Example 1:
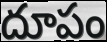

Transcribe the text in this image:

దూపం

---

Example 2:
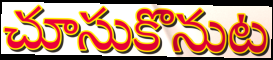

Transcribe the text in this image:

చూసుకొనుట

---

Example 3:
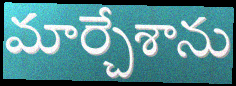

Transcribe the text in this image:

మార్చేశాను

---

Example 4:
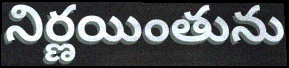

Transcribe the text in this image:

నిర్ణయింతును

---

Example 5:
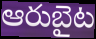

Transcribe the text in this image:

ఆరుబైట